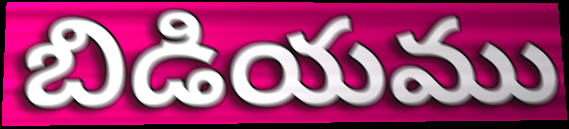
బిడియము